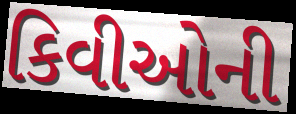
કિવીઓની